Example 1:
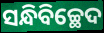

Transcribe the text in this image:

ସନ୍ଧିବିଚ୍ଛେଦ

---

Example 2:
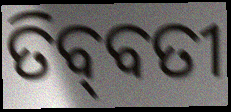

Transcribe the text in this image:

ତିବ୍‌ବତୀ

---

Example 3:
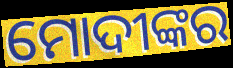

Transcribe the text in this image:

ମୋଦୀଙ୍କର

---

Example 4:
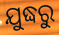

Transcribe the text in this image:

ଯୁଦ୍ଧରୁ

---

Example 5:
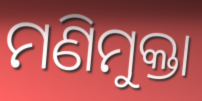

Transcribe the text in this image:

ମଣିମୁକ୍ତା